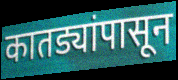
कातड्यांपासून